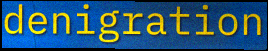
denigration